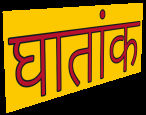
घातांक